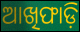
ଆଖିଫାଡ଼ି